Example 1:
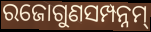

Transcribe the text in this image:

ରଜୋଗୁଣସମ୍ପନ୍ନମ୍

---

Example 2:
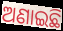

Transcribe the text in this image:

ଅଣାଇଛି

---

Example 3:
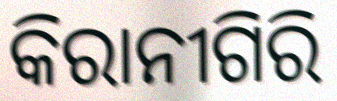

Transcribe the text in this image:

କିରାନୀଗିରି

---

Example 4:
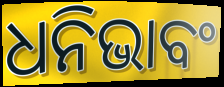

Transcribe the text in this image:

ଧନିଭାବଂ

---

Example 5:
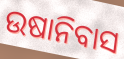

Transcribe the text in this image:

ଉଷାନିବାସ